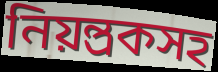
নিয়ন্ত্রকসহ